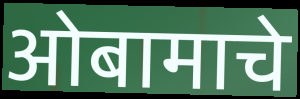
ओबामाचे